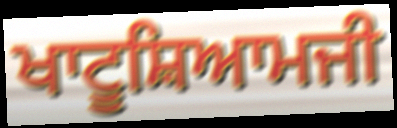
ਖਾਟੂਸ਼ਿਆਮਜੀ